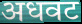
अधवट